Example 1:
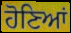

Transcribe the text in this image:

ਹੋਣਿਆਂ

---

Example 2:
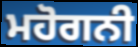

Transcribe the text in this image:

ਮਹੋਗਨੀ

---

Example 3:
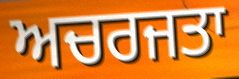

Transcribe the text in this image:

ਅਚਰਜਤਾ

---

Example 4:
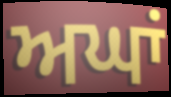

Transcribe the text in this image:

ਅਘਾਂ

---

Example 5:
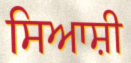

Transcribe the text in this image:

ਸਿਆਸ਼ੀ